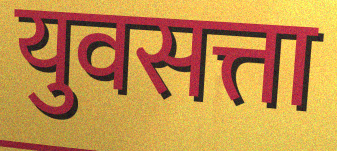
युवसत्ता